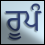
ਰੂਪੰ